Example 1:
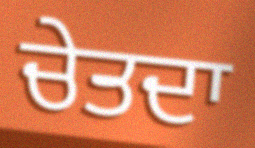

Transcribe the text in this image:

ਚੇਤਦਾ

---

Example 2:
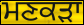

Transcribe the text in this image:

ਮਣਕੜਾ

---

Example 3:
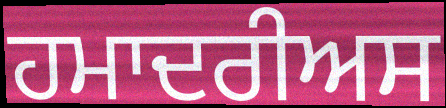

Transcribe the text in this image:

ਹਮਾਦਰੀਅਸ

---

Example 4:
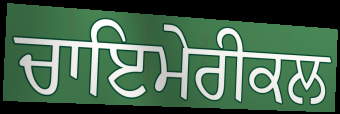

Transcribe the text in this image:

ਚਾਇਮੇਰੀਕਲ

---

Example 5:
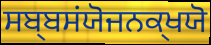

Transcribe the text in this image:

ਸਬ੍ਬਸਂਯੋਜਨਕ੍ਖਯੋ